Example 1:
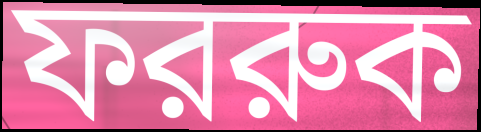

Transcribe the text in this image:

ফররুক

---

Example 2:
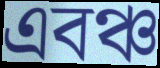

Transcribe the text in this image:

এবঞ্চ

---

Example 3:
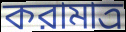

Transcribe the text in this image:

করামাত্র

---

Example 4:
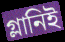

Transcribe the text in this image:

গ্লানিই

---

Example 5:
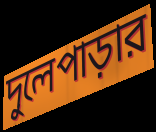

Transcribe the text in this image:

দুলেপাড়ার